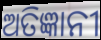
ଅତିଜ୍ଞାନୀ